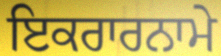
ਇਕਰਾਰਨਾਮੇ